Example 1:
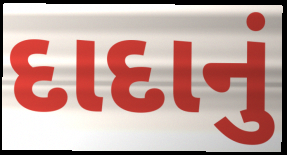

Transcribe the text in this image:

દાદાનું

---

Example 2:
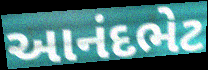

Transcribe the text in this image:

આનંદભેટ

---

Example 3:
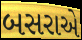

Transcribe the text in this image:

બસરાએ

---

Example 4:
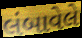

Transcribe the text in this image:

લંબાવેલે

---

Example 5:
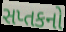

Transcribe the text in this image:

સપ્તકનો